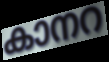
കാനറ